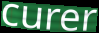
curer